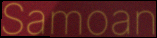
Samoan